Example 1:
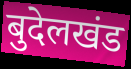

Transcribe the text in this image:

बुदेलखंड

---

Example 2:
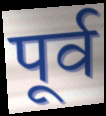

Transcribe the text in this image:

पूर्व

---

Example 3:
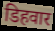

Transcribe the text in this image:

डिहवार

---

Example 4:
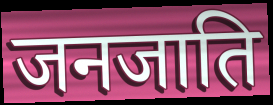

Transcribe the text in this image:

जनजाति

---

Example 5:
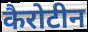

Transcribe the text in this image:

कैरोटीन